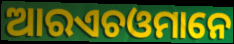
ଆରଏଚଓମାନେ